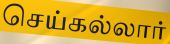
செய்கல்லார்